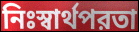
নিঃস্বার্থপরতা